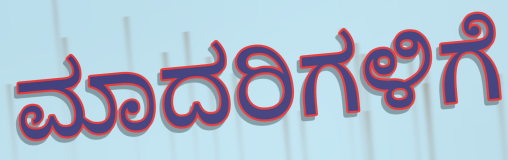
ಮಾದರಿಗಳಿಗೆ